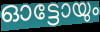
ഓട്ടോയും